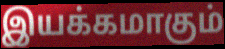
இயக்கமாகும்